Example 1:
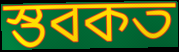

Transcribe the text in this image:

স্তবকত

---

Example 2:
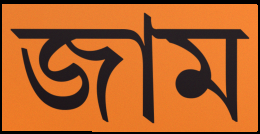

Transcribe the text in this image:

জাম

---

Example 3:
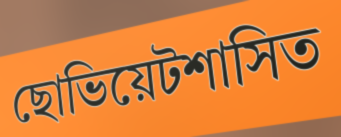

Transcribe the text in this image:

ছোভিয়েটশাসিত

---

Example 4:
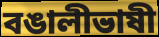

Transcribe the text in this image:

বঙালীভাষী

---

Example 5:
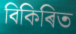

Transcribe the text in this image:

বিকিৰিত